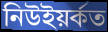
নিউইয়ৰ্কত